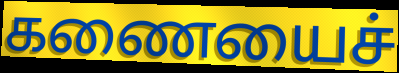
கணையைச்